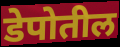
डेपोतील